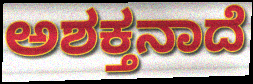
ಅಶಕ್ತನಾದೆ